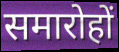
समारोहों